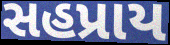
સહપ્રાય